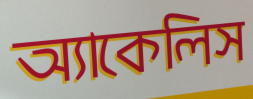
অ্যাকেলিস